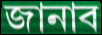
জানাব